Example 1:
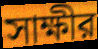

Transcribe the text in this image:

সাক্ষীর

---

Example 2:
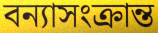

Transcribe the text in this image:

বন্যাসংক্রান্ত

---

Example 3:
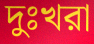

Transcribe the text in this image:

দুঃখরা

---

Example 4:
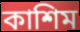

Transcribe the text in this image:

কাশিম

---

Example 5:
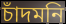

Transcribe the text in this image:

চাঁদমনি